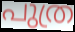
പുത്ര